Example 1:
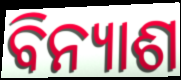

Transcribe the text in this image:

ବିନ୍ୟାଶ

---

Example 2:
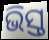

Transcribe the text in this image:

ଭିସ୍ତ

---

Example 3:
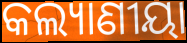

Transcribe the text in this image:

କଲ୍ୟାଣୀୟା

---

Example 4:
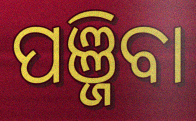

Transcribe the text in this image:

ପଞ୍ଜିବା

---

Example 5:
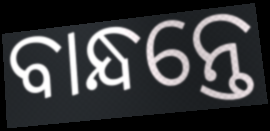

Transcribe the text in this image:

ବାନ୍ଧନ୍ତେ